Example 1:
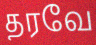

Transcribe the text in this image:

தரவே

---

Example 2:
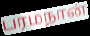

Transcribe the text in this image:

பரமநான்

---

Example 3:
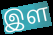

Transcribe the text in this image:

இள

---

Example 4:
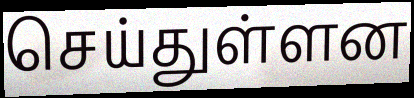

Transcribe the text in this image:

செய்துள்ளன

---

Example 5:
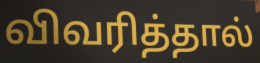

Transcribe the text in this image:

விவரித்தால்